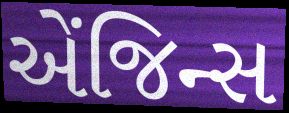
એંજિન્સ